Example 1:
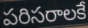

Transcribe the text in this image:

పరిసరాలకే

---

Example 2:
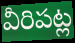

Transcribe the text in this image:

వీరిపట్ల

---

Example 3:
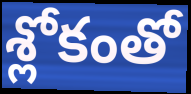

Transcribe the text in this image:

శ్లోకంతో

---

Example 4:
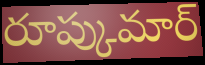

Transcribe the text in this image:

రూప్కుమార్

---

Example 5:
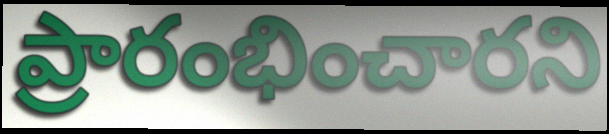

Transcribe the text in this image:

ప్రారంభించారని